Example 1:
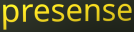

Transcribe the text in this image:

presense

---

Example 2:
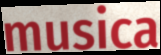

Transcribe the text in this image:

musica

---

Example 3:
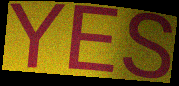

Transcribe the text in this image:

YES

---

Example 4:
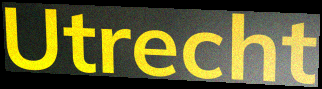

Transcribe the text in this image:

Utrecht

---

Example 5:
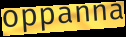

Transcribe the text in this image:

oppanna